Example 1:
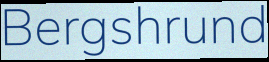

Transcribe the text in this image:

Bergshrund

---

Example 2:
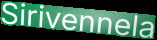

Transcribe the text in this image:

Sirivennela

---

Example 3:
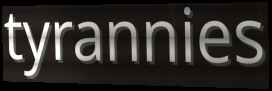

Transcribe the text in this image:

tyrannies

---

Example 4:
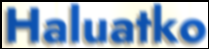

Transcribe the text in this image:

Haluatko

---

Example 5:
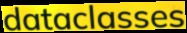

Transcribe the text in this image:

dataclasses